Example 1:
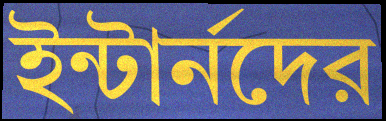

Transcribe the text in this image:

ইন্টার্নদের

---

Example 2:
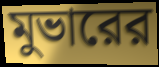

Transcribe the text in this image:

মুভারের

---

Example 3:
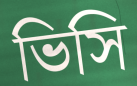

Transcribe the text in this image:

ভিসি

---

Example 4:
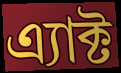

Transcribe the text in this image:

এ্যাক্ট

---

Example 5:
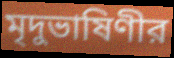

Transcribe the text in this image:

মৃদুভাষিণীর